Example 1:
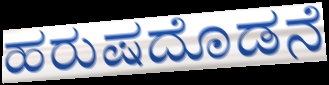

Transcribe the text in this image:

ಹರುಷದೊಡನೆ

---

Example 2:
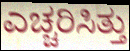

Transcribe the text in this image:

ಎಚ್ಚರಿಸಿತ್ತು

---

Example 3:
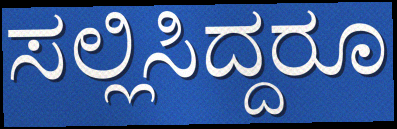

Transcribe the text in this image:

ಸಲ್ಲಿಸಿದ್ದರೂ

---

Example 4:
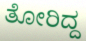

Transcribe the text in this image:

ತೋರಿದ್ದ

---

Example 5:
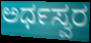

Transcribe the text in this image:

ಅರ್ಧಸ್ವರ